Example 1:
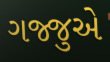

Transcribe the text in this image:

ગજ્જુએ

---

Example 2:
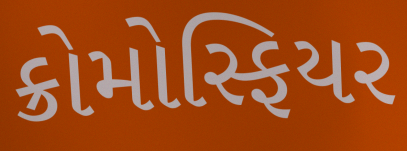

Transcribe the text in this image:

ક્રોમોસ્ફિયર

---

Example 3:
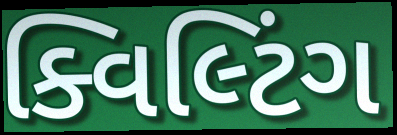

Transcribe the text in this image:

ક્વિલ્ટિંગ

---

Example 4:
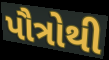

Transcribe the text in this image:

પૌત્રોથી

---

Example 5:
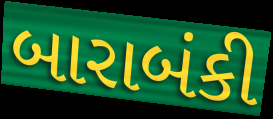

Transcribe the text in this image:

બારાબંકી